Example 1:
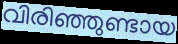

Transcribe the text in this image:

വിരിഞ്ഞുണ്ടായ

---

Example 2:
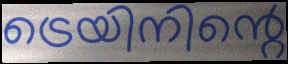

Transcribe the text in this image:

ട്രെയിനിന്റെ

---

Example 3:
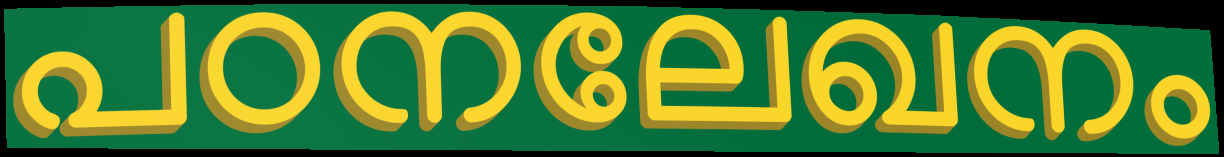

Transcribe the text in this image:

പഠനലേഖനം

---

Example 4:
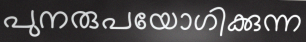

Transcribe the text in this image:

പുനരുപയോഗിക്കുന്ന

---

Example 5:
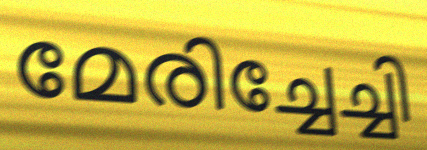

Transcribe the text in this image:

മേരിച്ചേച്ചി